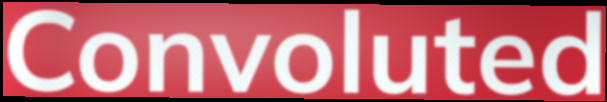
Convoluted